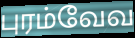
புரம்வேவ